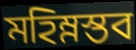
মহিম্নস্তব